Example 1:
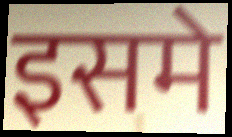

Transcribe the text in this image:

इसमे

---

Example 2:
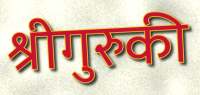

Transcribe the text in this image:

श्रीगुरुकी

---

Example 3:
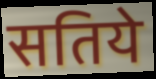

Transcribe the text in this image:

सतिये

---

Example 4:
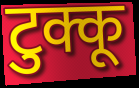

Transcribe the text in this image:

टुक्कू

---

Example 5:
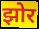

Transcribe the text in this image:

झोर